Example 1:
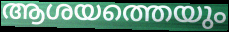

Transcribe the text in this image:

ആശയത്തെയും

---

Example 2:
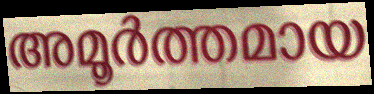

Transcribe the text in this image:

അമൂർത്തമായ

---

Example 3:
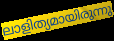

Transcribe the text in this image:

ലാളിത്യമായിരുന്നു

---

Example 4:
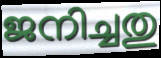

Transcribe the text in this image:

ജനിച്ചതു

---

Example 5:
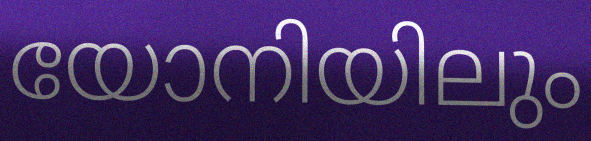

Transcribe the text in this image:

യോനിയിലും